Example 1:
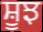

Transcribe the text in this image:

ਸ਼ੂਝ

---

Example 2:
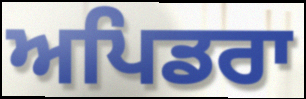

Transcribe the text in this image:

ਅਪਿਡਰਾ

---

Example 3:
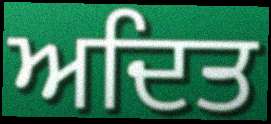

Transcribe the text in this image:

ਅਦਿਤ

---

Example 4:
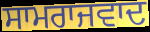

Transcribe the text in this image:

ਸਾਮਰਾਜਵਾਦ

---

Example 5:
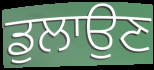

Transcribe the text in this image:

ਡੁਲਾਉਣ